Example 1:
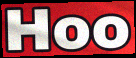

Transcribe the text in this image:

Hoo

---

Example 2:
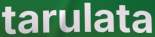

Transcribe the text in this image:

tarulata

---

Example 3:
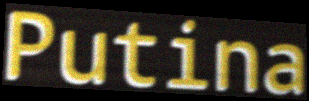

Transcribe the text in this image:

Putina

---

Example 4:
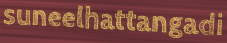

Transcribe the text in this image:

suneelhattangadi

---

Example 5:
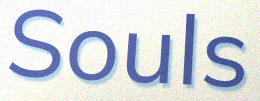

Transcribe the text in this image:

Souls